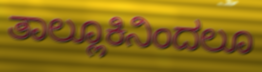
ತಾಲ್ಲೂಕಿನಿಂದಲೂ